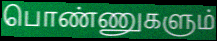
பொண்ணுகளும்